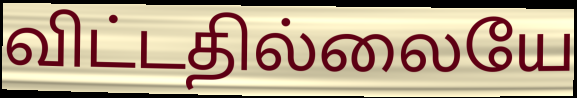
விட்டதில்லையே